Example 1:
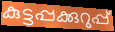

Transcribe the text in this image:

കുട്ടപ്പക്കുറുപ്പ്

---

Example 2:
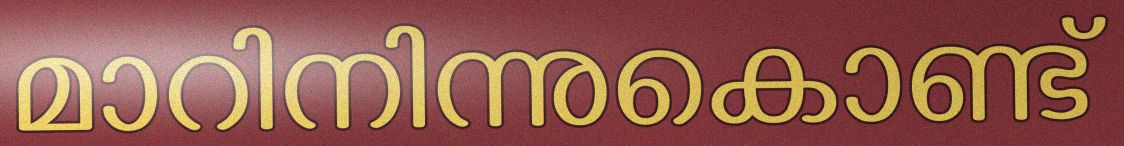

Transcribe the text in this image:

മാറിനിന്നുകൊണ്ട്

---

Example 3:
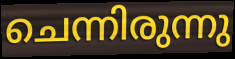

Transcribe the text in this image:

ചെന്നിരുന്നു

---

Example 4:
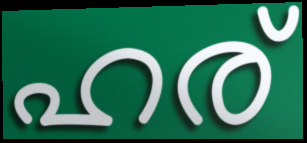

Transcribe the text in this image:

ഹര്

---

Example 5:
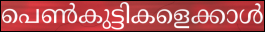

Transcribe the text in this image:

പെൺകുട്ടികളെക്കാൾ